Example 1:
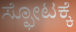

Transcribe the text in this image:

ಸ್ಫೋಟಕ್ಕೆ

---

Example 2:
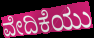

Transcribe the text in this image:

ವೇದಿಕೆಯು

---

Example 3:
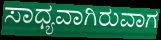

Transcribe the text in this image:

ಸಾಧ್ಯವಾಗಿರುವಾಗ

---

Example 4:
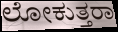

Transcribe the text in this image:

ಲೋಕುತ್ತರಾ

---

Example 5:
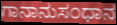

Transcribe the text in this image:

ಗಾನಾನುಸಂಧಾನ